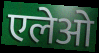
एलेओ